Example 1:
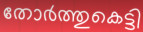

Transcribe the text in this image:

തോർത്തുകെട്ടി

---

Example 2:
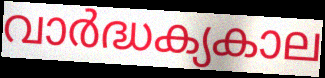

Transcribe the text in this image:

വാർദ്ധക്യകാല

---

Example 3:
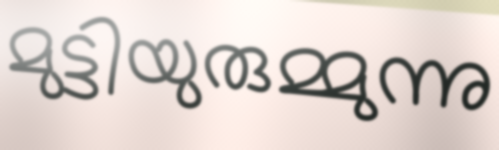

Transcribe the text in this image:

മുട്ടിയുരുമ്മുന്നു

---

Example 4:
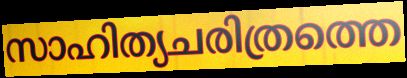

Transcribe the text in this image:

സാഹിത്യചരിത്രത്തെ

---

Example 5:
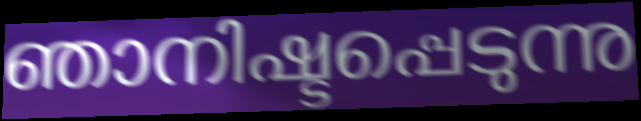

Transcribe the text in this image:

ഞാനിഷ്ടപ്പെടുന്നു